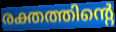
രക്തത്തിന്റെ